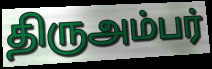
திருஅம்பர்